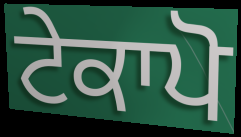
ਟੇਕਾਪੋ